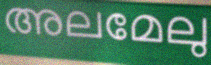
അലമേലു